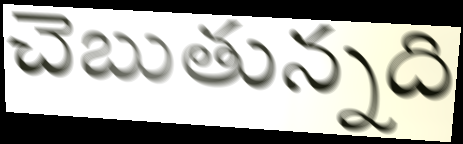
చెబుతున్నది